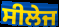
ਸੀਲੇਜ